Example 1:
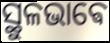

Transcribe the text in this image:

ସ୍ଥୁଳଭାଵେ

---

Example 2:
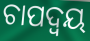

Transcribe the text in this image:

ଚାପଦ୍ଵୟ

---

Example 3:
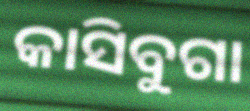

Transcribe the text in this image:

କାସିବୁଗା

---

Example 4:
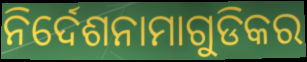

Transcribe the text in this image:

ନିର୍ଦେଶନାମାଗୁଡିକର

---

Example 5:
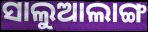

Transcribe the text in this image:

ସାଲୁଆଲାଙ୍ଗ